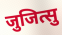
जुजित्सु